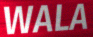
WALA